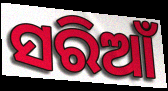
ସରିଆଁ